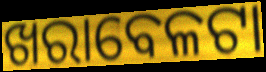
ଖରାବେଳଟା